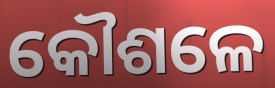
କୌଶଳେ